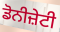
ਡੋਨੀਜ਼ੇਟੀ